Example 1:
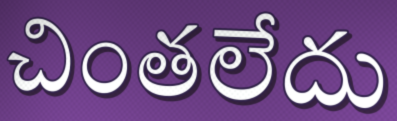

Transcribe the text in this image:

చింతలేదు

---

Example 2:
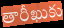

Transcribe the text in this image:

తారీఖుకు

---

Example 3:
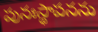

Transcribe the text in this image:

పునఃస్థాపనను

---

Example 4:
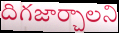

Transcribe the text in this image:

దిగజార్చాలని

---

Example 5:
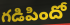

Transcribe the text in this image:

గడిపిందో